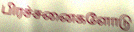
பிரச்சனைகளோடு